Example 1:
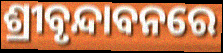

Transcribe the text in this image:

ଶ୍ରୀବୃନ୍ଦାବନରେ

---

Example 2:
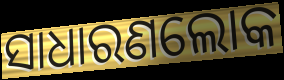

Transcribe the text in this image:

ସାଧାରଣଲୋକ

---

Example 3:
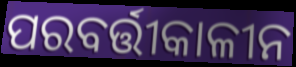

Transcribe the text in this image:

ପରବର୍ତ୍ତୀକାଳୀନ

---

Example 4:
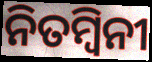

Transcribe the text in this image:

ନିତମ୍ବିନୀ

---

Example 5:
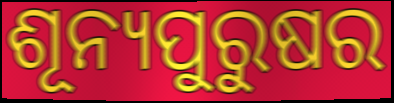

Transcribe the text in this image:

ଶୂନ୍ୟପୁରୁଷର